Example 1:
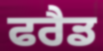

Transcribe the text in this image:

ਫਰੈਡ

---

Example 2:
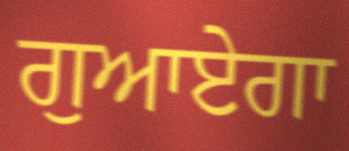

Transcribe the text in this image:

ਗੁਆਏਗਾ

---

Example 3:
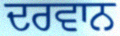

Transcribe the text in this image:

ਦਰਵਾਨ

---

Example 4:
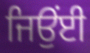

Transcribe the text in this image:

ਜਿਉਂਈ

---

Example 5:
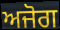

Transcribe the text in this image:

ਅਜੋਗ